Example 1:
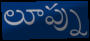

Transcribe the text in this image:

లూప్ను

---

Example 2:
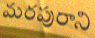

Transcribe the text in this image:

మరపురాని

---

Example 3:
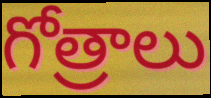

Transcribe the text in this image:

గోత్రాలు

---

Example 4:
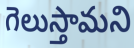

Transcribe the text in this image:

గెలుస్తామని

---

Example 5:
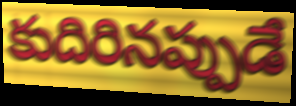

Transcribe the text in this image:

కుదిరినప్పుడే